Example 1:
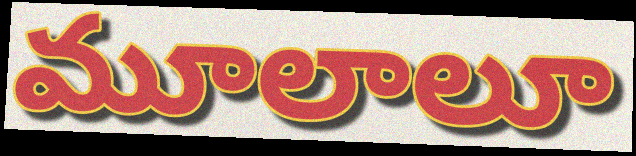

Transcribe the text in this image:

మూలాలూ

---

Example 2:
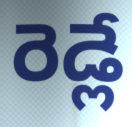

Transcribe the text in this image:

రెడ్లే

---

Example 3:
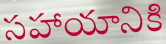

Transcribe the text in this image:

సహాయానికి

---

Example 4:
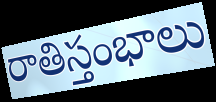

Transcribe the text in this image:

రాతిస్తంభాలు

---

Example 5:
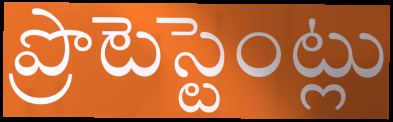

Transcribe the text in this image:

ప్రొటెస్టెంట్లు